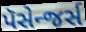
પૅસેન્જર્સ